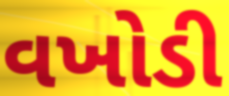
વખોડી